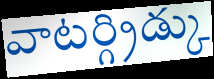
వాటర్గ్రిడ్కు